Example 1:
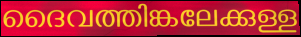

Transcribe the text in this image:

ദൈവത്തിങ്കലേക്കുള്ള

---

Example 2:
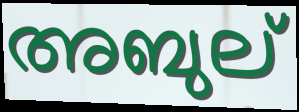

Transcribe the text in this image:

അബുല്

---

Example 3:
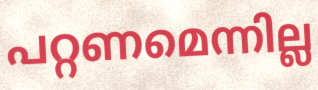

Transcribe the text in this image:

പറ്റണമെന്നില്ല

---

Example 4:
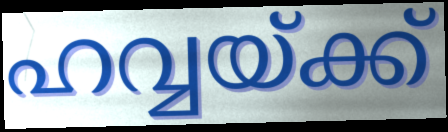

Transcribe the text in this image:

ഹവ്വയ്ക്ക്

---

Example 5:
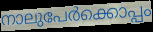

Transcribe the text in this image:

നാലുപേർക്കൊപ്പം